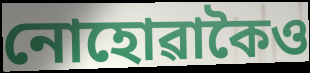
নোহোৱাকৈও